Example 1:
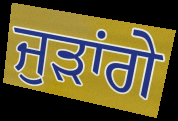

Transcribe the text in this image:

ਜੁੜਾਂਗੇ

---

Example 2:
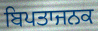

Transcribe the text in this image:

ਬਿਪਤਾਜਨਕ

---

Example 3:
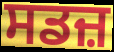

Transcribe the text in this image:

ਸਡਜ਼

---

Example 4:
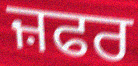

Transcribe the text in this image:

ਜ਼ਫਰ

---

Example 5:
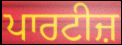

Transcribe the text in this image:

ਪਾਰਟੀਜ਼